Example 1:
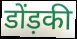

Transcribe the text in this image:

डोंड़की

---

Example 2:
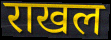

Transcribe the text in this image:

राखल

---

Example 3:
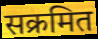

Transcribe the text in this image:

सक्रमित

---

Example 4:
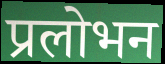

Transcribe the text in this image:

प्रलोभन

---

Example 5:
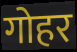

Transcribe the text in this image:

गोहर